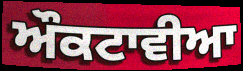
ਔਕਟਾਵੀਆ